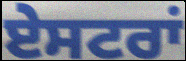
ਏਸਟਰਾਂ